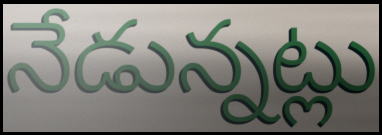
నేడున్నట్లు